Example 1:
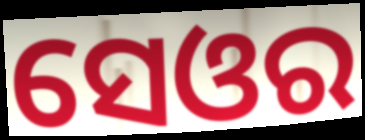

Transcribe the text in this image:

ସେଓର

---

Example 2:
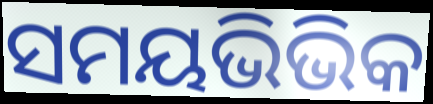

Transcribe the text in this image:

ସମୟଭିଭିକ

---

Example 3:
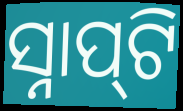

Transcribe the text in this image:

ସ୍ନାପ୍‍ଟି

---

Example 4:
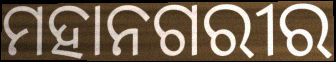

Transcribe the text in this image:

ମହାନଗରୀର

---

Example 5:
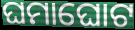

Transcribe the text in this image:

ଘମାଘୋଟ